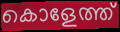
കൊളേത്ത്